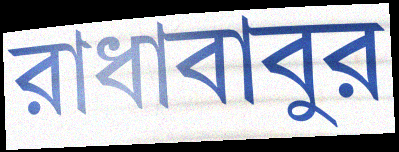
রাধাবাবুর